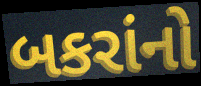
બકરાંનો